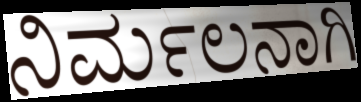
ನಿರ್ಮಲನಾಗಿ